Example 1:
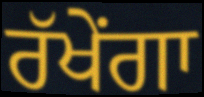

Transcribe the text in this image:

ਰੱਖੇਂਗਾ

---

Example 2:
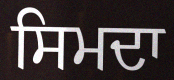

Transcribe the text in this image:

ਸਿਮਦਾ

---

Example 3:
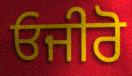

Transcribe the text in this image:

ਓਜੀਰੋ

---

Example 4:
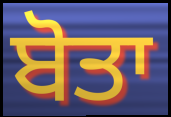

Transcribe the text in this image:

ਬੋਤਾ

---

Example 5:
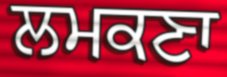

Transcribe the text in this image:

ਲਮਕਣਾ